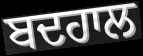
ਬਦਹਾਲ